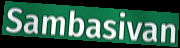
Sambasivan